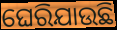
ଘେରିଯାଉଛି